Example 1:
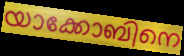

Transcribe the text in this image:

യാക്കോബിനെ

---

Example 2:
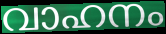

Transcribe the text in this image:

വാഹനം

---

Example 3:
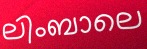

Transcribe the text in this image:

ലിംബാലെ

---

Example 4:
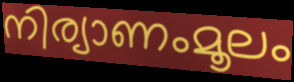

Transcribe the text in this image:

നിര്യാണംമൂലം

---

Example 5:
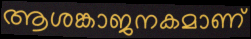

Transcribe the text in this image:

ആശങ്കാജനകമാണ്